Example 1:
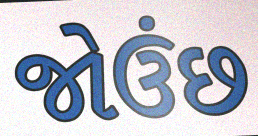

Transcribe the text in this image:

જોઉંછ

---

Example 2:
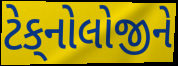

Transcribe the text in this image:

ટેક્‌નોલોજીને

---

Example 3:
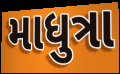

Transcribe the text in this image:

માધુત્રા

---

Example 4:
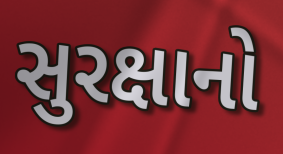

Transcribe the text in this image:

સુરક્ષાનો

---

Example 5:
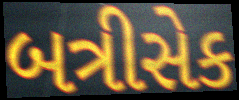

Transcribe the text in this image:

બત્રીસેક